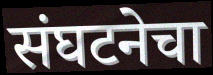
संघटनेचा